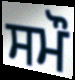
ਸਮੌ